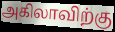
அகிலாவிற்கு